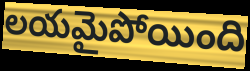
లయమైపోయింది